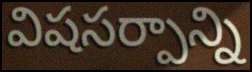
విషసర్పాన్ని